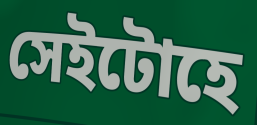
সেইটোহে